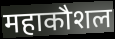
महाकौशल